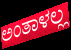
ಅಂತಾಳಲ್ಲ